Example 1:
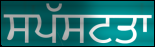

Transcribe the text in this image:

ਸਪੱਸਟਤਾ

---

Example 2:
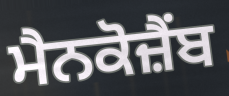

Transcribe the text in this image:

ਮੈਨਕੋਜ਼ੈਂਬ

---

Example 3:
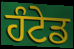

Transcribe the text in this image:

ਹੰਟੇਡ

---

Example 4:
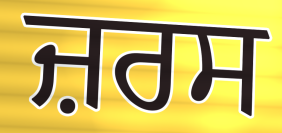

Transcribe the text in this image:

ਜ਼ਰਸ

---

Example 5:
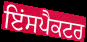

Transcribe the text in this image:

ਇਂਸਪੈਕਟਰ